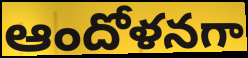
ఆందోళనగా